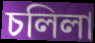
চলিলা